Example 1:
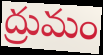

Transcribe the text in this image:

ద్రుమం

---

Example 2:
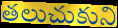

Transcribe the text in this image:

తలుచుకుని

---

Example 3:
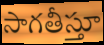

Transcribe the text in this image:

సాగతీస్తూ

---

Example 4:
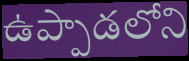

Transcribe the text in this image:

ఉప్పాడలోని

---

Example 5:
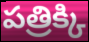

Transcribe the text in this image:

పత్రిక్కి